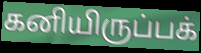
கனியிருப்பக்